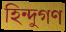
হিন্দুগণ